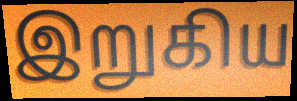
இறுகிய